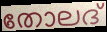
തോലദ്